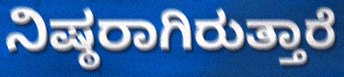
ನಿಷ್ಠರಾಗಿರುತ್ತಾರೆ